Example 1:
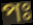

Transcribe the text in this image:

পঃ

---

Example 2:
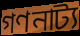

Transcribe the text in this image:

গণনাট্য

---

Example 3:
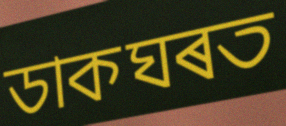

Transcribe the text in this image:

ডাকঘৰত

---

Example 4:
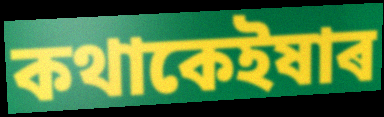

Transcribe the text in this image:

কথাকেইষাৰ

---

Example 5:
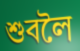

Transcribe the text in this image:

শুবলৈ